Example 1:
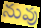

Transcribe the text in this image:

నువు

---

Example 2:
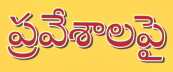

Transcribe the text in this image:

ప్రవేశాలపై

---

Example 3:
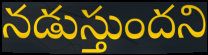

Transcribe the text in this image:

నడుస్తుందని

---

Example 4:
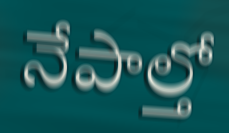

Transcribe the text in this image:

నేపాల్తో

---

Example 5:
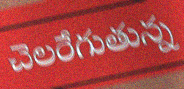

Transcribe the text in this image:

చెలరేగుతున్న